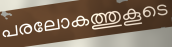
പരലോകത്തുകൂടെ